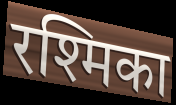
रश्मिका